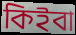
কিইবা